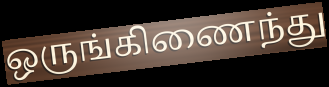
ஒருங்கிணைந்து